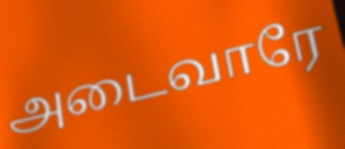
அடைவாரே